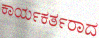
ಕಾರ್ಯಕರ್ತರಾದ